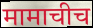
मामाचीच